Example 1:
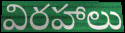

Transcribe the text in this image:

విరహాలు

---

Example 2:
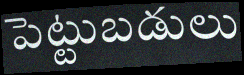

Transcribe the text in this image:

పెట్టుబడులు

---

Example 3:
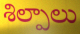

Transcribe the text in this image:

శిల్పాలు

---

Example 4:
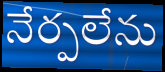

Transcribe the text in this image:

నేర్పలేను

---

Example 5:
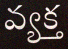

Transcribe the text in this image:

వ్యక్త